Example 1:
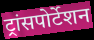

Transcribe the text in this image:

ट्रांसपोर्टेशन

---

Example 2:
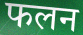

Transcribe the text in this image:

फलन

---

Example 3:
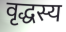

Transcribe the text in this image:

वृद्धस्य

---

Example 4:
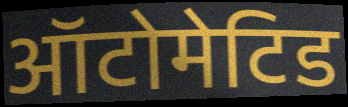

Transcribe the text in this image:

ऑटोमेटिड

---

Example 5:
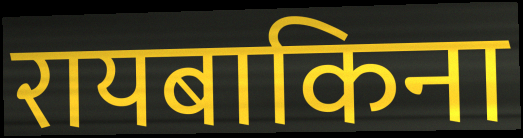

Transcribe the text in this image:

रायबाकिना